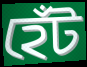
হেঁট